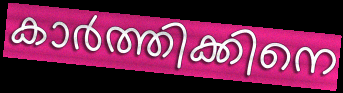
കാർത്തിക്കിനെ